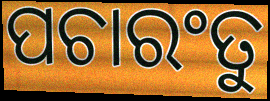
ପଚାରଂତୁ